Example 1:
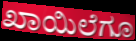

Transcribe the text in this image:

ಖಾಯಿಲೆಗೂ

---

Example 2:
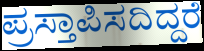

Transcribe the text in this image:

ಪ್ರಸ್ತಾಪಿಸದಿದ್ದರೆ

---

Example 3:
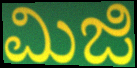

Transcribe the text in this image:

ಮಿಜಿ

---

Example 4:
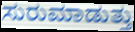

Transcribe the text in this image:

ಸುರುಮಾಡುತ್ತು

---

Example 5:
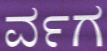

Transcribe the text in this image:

ರ್ವಗ